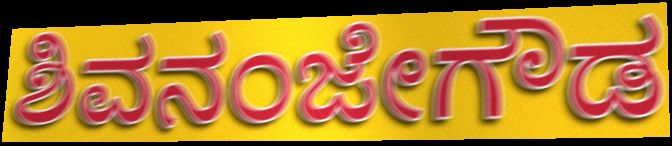
ಶಿವನಂಜೇಗೌಡ